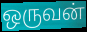
ஒருவன்